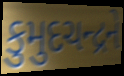
કુમુદચન્દ્રને